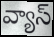
వ్యాస్